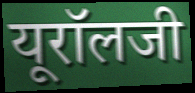
यूरॉलजी